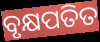
ବୃକ୍ଷପତିତ